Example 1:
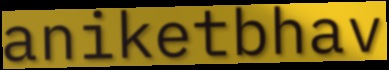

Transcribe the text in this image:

aniketbhav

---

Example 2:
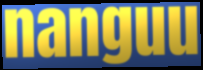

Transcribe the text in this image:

nanguu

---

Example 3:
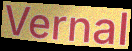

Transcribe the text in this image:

Vernal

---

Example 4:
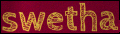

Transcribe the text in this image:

swetha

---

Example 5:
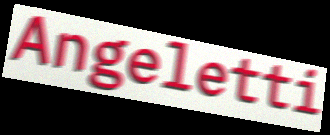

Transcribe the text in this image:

Angeletti